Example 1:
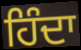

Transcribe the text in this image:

ਹਿੰਦਾ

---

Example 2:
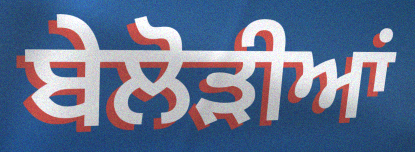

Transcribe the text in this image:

ਬੇਲੋੜੀਆਂ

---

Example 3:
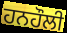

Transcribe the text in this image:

ਹਨਹੌਲੀ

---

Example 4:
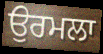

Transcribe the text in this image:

ਉਰਮਲਾ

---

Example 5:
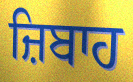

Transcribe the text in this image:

ਜ਼ਿਬਾਹ